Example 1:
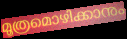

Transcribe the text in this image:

മൂത്രമൊഴിക്കാനും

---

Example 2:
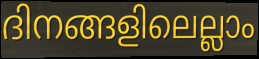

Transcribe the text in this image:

ദിനങ്ങളിലെല്ലാം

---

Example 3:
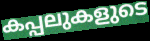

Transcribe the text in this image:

കപ്പലുകളുടെ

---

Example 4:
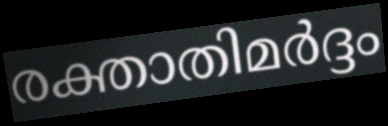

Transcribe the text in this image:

രക്താതിമർദ്ദം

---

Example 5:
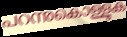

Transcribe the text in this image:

പറന്നുകൊള്ളുക